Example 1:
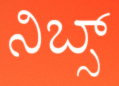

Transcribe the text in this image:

ನಿಬ್ಸ್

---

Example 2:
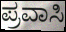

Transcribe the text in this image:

ಪ್ರವಾಸಿ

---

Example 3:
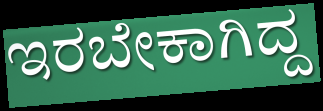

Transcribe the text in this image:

ಇರಬೇಕಾಗಿದ್ದ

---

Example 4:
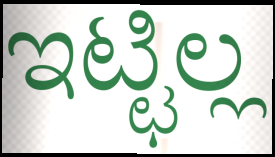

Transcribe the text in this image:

ಇಟ್ಟಿಲ್ಲ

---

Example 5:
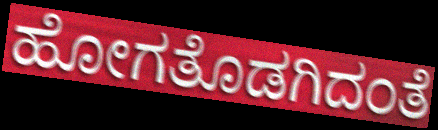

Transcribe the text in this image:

ಹೋಗತೊಡಗಿದಂತೆ